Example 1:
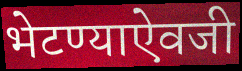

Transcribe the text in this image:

भेटण्याऐवजी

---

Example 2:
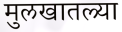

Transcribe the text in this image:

मुलखातल्या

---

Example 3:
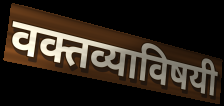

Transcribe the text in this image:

वक्तव्याविषयी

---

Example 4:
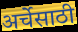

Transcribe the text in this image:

अर्चेसाठी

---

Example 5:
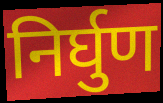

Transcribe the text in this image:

निर्घुण